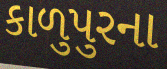
કાળુપુરના